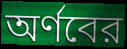
অর্ণবের